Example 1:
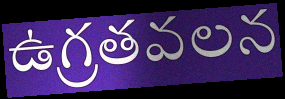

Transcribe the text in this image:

ఉగ్రతవలన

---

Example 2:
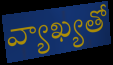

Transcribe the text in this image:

వ్యాఖ్యతో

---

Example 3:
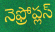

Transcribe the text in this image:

నెఫ్రోప్లస్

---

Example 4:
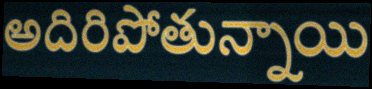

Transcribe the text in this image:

అదిరిపోతున్నాయి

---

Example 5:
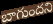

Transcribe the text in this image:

బాగుందని